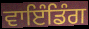
ਵਾਇੰਡਿੰਗ